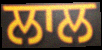
ਲਾਲ